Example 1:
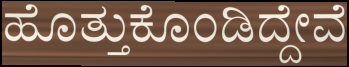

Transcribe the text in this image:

ಹೊತ್ತುಕೊಂಡಿದ್ದೇವೆ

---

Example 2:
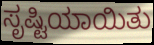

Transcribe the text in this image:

ಸೃಷ್ಟಿಯಾಯಿತು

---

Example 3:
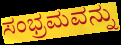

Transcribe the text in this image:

ಸಂಭ್ರಮವನ್ನು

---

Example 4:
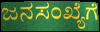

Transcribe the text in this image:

ಜನಸಂಖ್ಯೆಗೆ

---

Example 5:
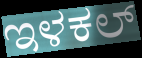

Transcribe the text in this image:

ಇಳಕಲ್